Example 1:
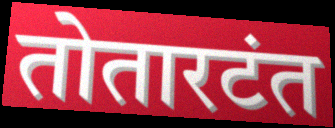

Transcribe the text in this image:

तोतारटंत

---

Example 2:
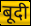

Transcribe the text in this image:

बूदी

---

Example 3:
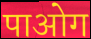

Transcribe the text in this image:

पाओग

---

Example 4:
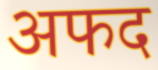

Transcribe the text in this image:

अफद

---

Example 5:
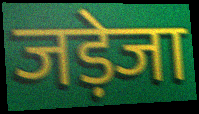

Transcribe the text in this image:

जड़ेजा